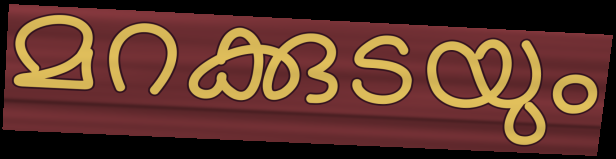
മറക്കുടയും